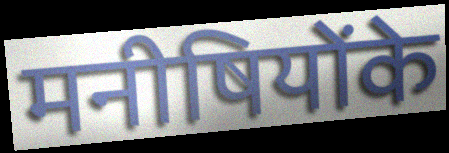
मनीषियोंके